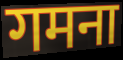
गमना